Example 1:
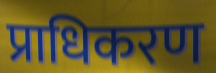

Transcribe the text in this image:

प्राधिकरण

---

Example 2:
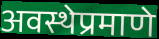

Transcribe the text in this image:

अवस्थेप्रमाणे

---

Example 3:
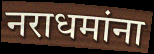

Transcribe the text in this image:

नराधमांना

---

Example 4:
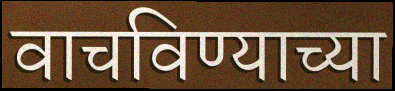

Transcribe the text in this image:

वाचविण्याच्या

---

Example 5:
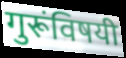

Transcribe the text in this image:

गुरूंविषयी